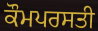
ਕੌਮਪਰਸਤੀ